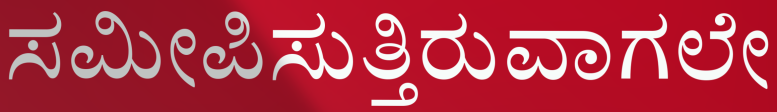
ಸಮೀಪಿಸುತ್ತಿರುವಾಗಲೇ